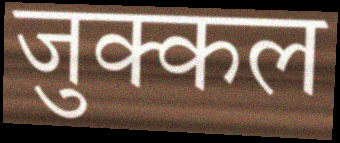
जुक्कल